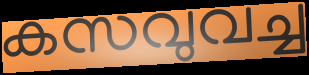
കസവുവച്ച